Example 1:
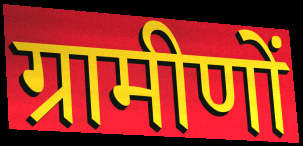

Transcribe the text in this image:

ग्रामीणों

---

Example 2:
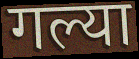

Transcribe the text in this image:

गल्या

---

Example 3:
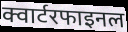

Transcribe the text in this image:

क्वार्टरफाइनल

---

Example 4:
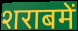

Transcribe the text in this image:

शराबमें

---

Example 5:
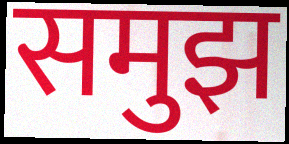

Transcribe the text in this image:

समुझ